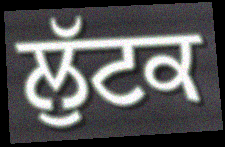
ਲੁੱਟਕ